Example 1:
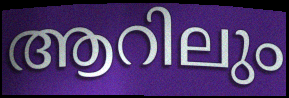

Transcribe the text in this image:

ആറിലും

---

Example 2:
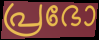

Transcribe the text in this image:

പ്രഭോ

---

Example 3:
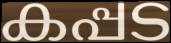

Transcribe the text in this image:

കപ്പട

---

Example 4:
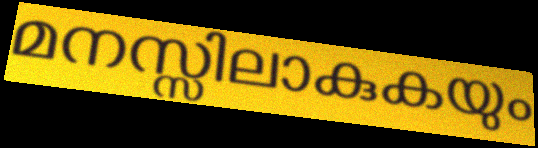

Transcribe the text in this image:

മനസ്സിലാകുകയും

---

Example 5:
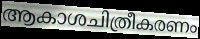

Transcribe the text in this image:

ആകാശചിത്രീകരണം